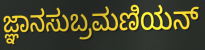
ಜ್ಞಾನಸುಬ್ರಮಣಿಯನ್